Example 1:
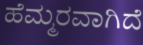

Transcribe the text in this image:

ಹೆಮ್ಮರವಾಗಿದೆ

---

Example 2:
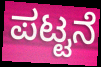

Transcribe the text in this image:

ಪಟ್ಟನೆ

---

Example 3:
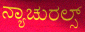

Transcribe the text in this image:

ನ್ಯಾಚುರಲ್ಸ್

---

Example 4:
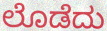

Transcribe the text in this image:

ಲೊಡೆದು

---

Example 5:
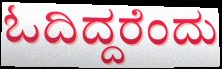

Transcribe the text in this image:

ಓದಿದ್ದರೆಂದು